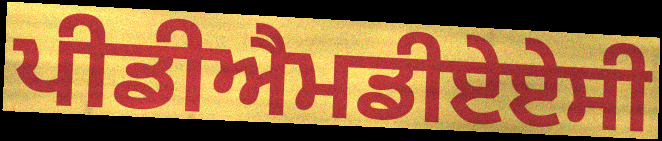
ਪੀਡੀਐਮਡੀਏਏਸੀ